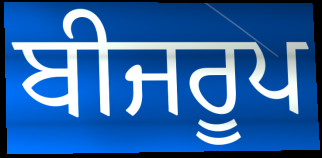
ਬੀਜਰੂਪ